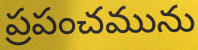
ప్రపంచమును